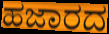
ಹಜಾರದ